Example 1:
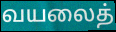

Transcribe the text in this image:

வயலைத்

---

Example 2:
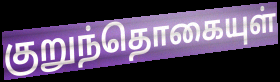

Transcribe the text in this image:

குறுந்தொகையுள்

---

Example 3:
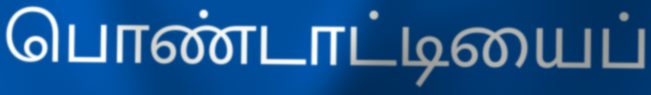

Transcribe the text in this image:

பொண்டாட்டியைப்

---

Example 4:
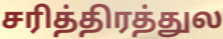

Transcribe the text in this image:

சரித்திரத்துல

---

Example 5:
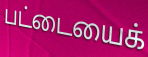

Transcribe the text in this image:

பட்டையைக்